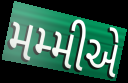
મમ્મીએ